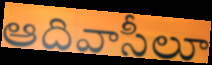
ఆదివాసీలూ